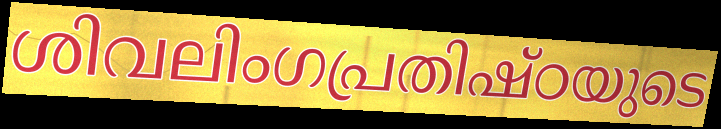
ശിവലിംഗപ്രതിഷ്ഠയുടെ